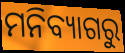
ମନିବ୍ୟାଗରୁ